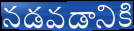
నడవడానికి